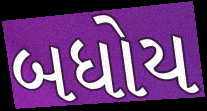
બધોય